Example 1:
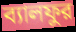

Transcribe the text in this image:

ব্যালফুর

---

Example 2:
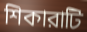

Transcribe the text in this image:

শিকারাটি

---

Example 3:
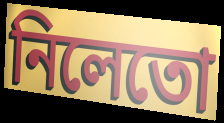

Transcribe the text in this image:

নিলেতো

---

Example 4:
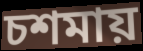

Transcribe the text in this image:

চশমায়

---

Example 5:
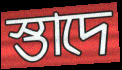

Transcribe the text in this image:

স্তাদে